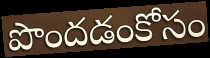
పొందడంకోసం